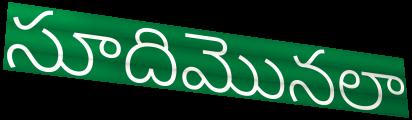
సూదిమొనలా